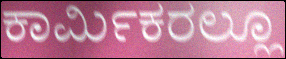
ಕಾರ್ಮಿಕರಲ್ಲೂ